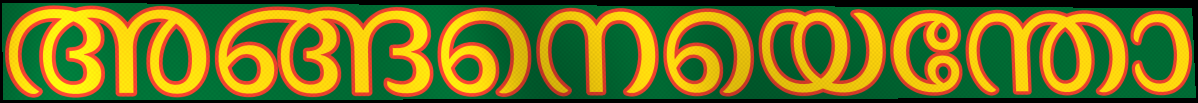
അങ്ങനെയെന്തോ